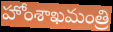
హోంశాఖమంత్రి